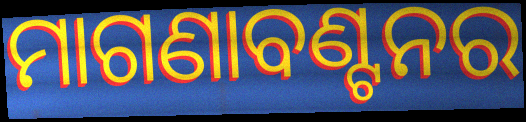
ମାଗଣାବଣ୍ଟନର